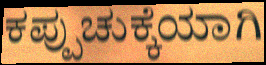
ಕಪ್ಪುಚುಕ್ಕೆಯಾಗಿ